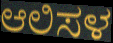
ಆಲಿಸಳ